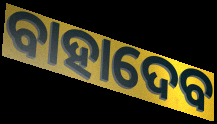
ବାହାଦେବ